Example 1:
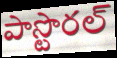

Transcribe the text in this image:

పాస్టొరల్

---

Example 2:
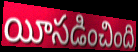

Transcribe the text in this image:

యీసడించింది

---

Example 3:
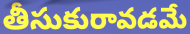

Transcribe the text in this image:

తీసుకురావడమే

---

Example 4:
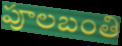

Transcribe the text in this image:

పూలబంతి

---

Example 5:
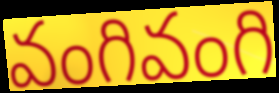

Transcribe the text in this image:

వంగివంగి